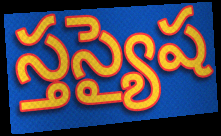
స్తస్యైష